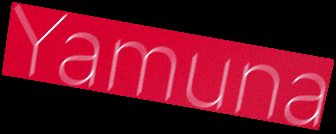
Yamuna